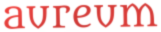
aureum